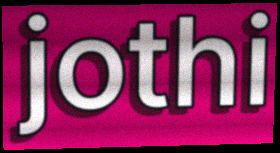
jothi